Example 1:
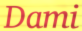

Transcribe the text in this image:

Dami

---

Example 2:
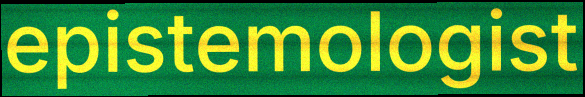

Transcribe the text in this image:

epistemologist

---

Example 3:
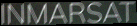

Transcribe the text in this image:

INMARSAT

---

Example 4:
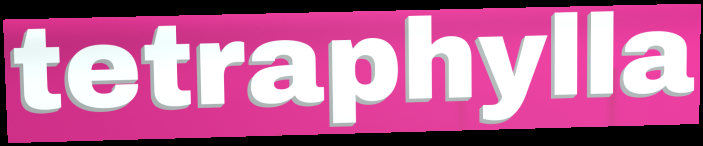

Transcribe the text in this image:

tetraphylla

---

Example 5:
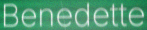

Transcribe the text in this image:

Benedette